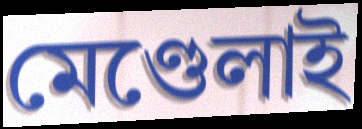
মেণ্ডেলাই